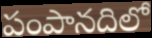
పంపానదిలో